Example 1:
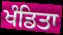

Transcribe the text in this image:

ਖੰਡਿਤਾ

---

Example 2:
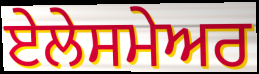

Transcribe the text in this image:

ਏਲੇਸਮੇਅਰ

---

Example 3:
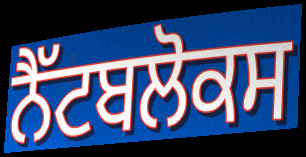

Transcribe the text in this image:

ਨੈੱਟਬਲੋਕਸ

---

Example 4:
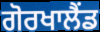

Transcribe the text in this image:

ਗੋਰਖਾਲੈਂਡ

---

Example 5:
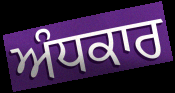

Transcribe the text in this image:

ਅੰਧਕਾਰ